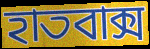
হাতবাক্স